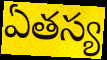
ఏతస్య